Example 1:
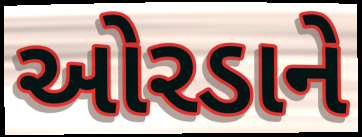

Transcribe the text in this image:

ઓરડાને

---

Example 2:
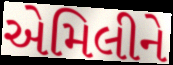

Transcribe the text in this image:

એમિલીને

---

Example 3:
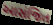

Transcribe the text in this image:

આસંજિત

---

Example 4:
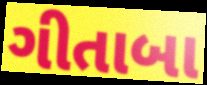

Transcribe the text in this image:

ગીતાબા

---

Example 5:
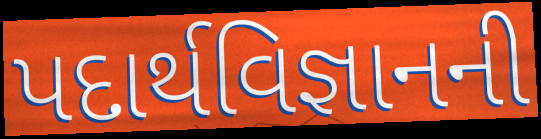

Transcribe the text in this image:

પદાર્થવિજ્ઞાનની